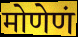
मोणेणं